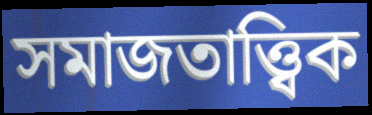
সমাজতাত্ত্বিক